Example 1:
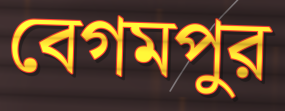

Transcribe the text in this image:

বেগমপুর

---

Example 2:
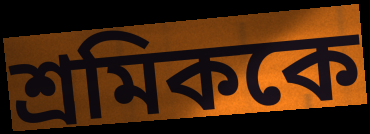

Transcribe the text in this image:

শ্রমিককে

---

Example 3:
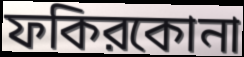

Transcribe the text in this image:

ফকিরকোনা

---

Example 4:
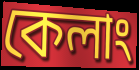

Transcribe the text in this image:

কেলাং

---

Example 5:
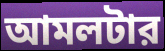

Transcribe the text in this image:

আমলটার